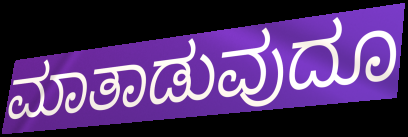
ಮಾತಾಡುವುದೂ